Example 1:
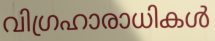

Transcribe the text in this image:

വിഗ്രഹാരാധികൾ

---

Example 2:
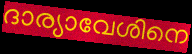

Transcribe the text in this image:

ദാര്യാവേശിനെ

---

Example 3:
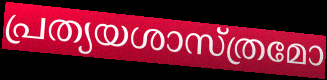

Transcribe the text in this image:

പ്രത്യയശാസ്ത്രമോ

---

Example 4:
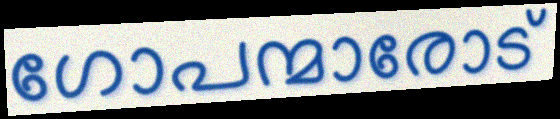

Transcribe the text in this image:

ഗോപന്മാരോട്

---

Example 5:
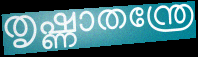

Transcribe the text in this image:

തൃഷ്ണാതന്ത്രേ